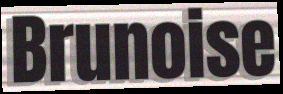
Brunoise